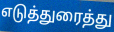
எடுத்துரைத்து